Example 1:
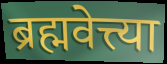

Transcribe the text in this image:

ब्रह्मवेत्त्या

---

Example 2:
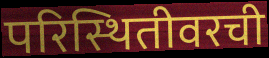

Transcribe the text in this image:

परिस्थितीवरची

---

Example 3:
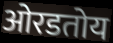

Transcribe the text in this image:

ओरडतोय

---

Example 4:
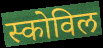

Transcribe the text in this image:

स्कोविल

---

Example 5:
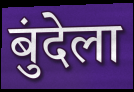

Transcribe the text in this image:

बुंदेला